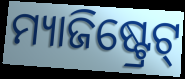
ମ୍ୟାଜିଷ୍ଟ୍ରେଟ୍